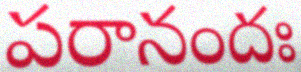
పరానందః